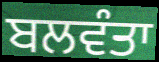
ਬਲਵੰਤਾ